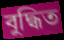
বুদ্ধিত